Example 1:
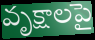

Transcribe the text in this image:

వృక్షాలపై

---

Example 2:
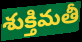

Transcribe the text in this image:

శుక్తిమతీ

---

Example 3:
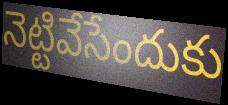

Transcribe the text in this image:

నెట్టివేసేందుకు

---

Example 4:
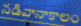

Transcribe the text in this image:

నడివానాకాలం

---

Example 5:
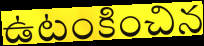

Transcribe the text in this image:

ఉటంకించిన